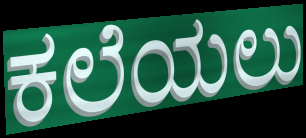
ಕಲೆಯಲು